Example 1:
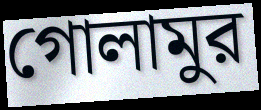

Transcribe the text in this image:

গোলামুর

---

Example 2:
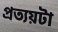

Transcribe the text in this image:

প্রত্যয়টা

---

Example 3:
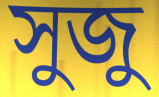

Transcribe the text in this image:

সুজু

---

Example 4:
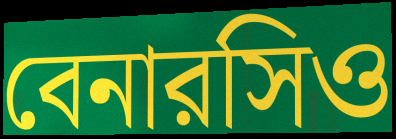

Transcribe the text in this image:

বেনারসিও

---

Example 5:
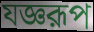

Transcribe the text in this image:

যজ্ঞরূপ